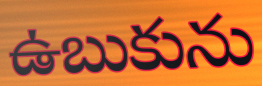
ఉబుకును